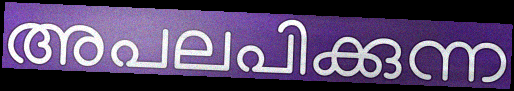
അപലപിക്കുന്ന